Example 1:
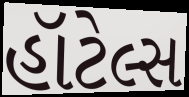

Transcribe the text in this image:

હૉટેલ્સ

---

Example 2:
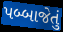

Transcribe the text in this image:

પબ્બાજેતું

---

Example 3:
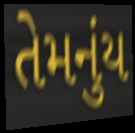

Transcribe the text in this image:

તેમનુંય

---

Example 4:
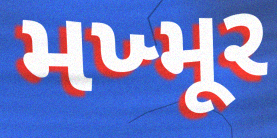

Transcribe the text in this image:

મખ્મૂર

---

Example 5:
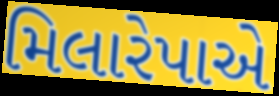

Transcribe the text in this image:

મિલારેપાએ